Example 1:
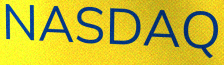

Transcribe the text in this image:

NASDAQ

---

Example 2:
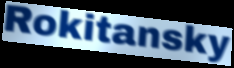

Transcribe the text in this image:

Rokitansky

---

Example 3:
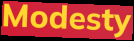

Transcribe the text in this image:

Modesty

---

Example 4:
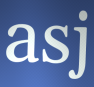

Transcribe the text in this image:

asj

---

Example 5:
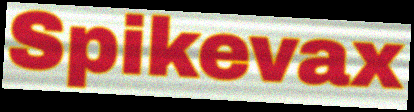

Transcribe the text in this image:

Spikevax